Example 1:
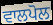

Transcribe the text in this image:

ਵਾਲਪੋਲ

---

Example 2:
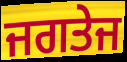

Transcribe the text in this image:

ਜਗਤੇਜ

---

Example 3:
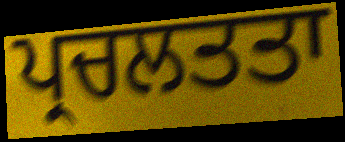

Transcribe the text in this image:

ਪ੍ਰਚਲਤਤਾ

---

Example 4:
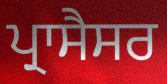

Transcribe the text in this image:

ਪ੍ਰਾਸੈਸਰ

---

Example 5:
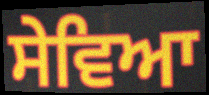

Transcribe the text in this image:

ਸੇਵਿਆ